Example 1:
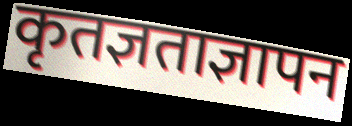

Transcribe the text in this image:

कृतज्ञताज्ञापन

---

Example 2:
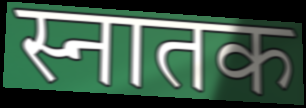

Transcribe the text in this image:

स्नातक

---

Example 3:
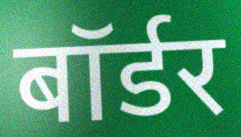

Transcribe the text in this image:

बॉर्डर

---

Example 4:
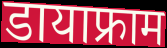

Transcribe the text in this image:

डायाफ्राम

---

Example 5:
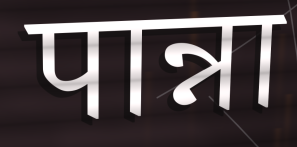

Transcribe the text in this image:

पान्ना